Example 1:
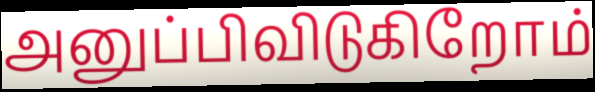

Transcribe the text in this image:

அனுப்பிவிடுகிறோம்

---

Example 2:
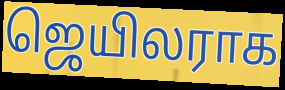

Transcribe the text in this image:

ஜெயிலராக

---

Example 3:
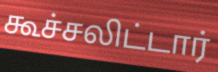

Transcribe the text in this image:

கூச்சலிட்டார்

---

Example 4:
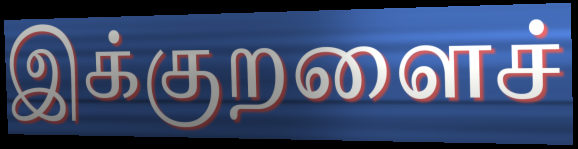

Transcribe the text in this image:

இக்குறளைச்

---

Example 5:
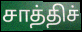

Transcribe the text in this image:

சாத்திச்